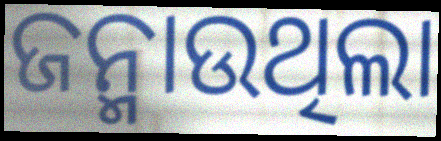
ଜନ୍ମାଉଥିଲା